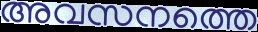
അവസനത്തെ